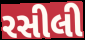
રસીલી